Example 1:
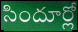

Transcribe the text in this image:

సిందూర్లో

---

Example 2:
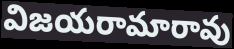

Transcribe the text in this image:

విజయరామారావు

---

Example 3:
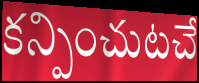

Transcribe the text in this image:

కన్పించుటచే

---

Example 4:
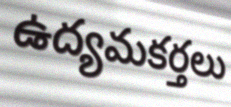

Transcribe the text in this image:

ఉద్యమకర్తలు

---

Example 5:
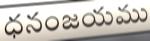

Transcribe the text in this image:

ధనంజయము